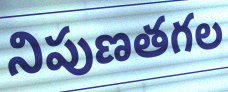
నిపుణతగల